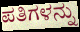
ಪತಿಗಳನ್ನು